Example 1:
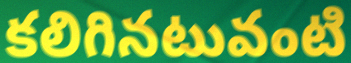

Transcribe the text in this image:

కలిగినటువంటి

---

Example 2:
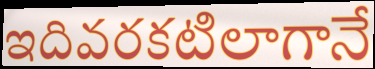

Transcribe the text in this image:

ఇదివరకటిలాగానే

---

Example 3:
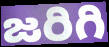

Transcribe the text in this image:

జరిగి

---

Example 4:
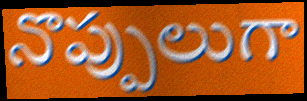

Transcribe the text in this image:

నొప్పులుగా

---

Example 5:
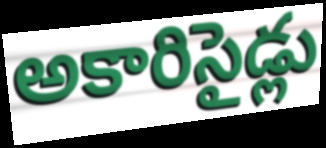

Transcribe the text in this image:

అకారిసైడ్లు